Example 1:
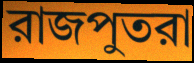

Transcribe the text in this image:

রাজপুতরা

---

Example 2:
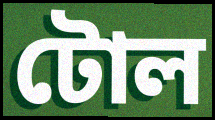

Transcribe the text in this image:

টোল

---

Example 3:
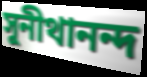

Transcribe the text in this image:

সুনীথানন্দ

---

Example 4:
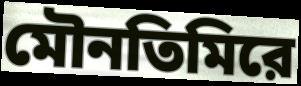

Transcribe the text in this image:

মৌনতিমিরে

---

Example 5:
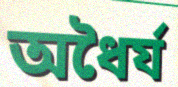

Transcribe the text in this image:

অধৈর্য